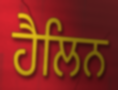
ਹੈਲਿਨ